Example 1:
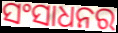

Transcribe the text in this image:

ସଂସାଧନର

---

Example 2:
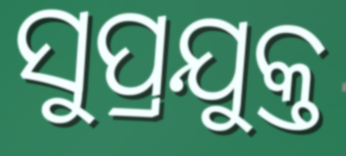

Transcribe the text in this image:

ସୁପ୍ରଯୁକ୍ତ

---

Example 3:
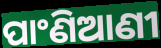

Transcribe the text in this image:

ପାଂଣିଆଣୀ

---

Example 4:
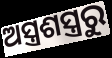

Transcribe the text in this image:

ଅସ୍ତ୍ରଶସ୍ତ୍ରରୁ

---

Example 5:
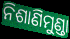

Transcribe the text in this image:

ନିଶାଣିମୁଣ୍ଡା